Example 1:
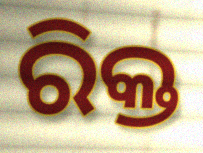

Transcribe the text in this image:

ରିକ୍ତ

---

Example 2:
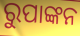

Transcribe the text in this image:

ରୁପାଙ୍କନ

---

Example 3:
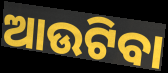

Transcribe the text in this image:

ଆଉଟିବା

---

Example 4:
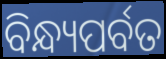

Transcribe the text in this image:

ବିନ୍ଧ୍ୟପର୍ବତ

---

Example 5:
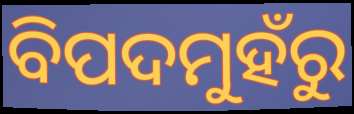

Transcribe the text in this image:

ବିପଦମୁହଁରୁ